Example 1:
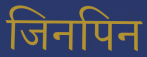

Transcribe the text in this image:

जिनपिन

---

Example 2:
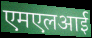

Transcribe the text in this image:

एमएलआई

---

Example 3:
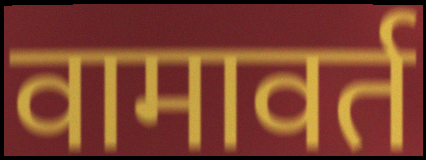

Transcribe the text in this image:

वामावर्त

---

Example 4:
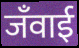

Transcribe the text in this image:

जँवाई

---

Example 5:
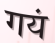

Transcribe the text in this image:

गयं